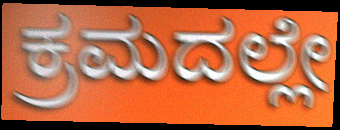
ಕ್ರಮದಲ್ಲೇ